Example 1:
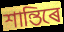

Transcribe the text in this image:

শান্তিৰে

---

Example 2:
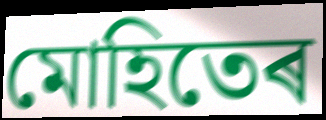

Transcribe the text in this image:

মোহিতেৰ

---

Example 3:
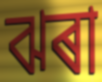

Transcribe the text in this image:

ঝৰা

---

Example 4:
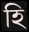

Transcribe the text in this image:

হি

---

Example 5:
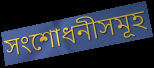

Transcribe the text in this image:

সংশোধনীসমূহ